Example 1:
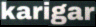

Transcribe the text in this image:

karigar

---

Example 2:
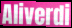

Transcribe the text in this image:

Aliverdi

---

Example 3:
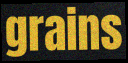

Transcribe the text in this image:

grains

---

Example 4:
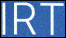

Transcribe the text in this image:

IRT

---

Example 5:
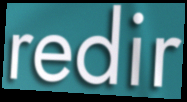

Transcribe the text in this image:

redir